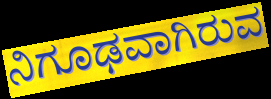
ನಿಗೂಢವಾಗಿರುವ